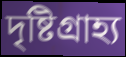
দৃষ্টিগ্রাহ্য